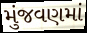
મુંજવણમાં